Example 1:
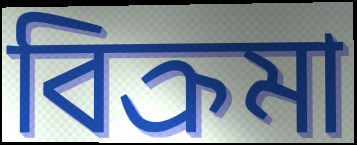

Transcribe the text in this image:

বিক্রমা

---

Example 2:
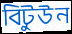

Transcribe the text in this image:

বিটুউন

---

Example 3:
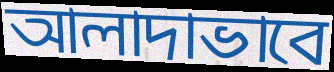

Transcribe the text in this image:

আলাদাভাবে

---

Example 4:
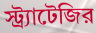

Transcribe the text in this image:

স্ট্র্যাটেজির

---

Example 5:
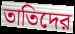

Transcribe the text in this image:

তাতিদের